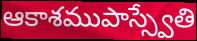
ఆకాశముపాస్స్వేతి